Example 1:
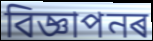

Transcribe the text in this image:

বিজ্ঞাপনৰ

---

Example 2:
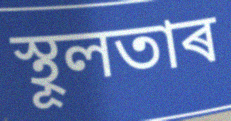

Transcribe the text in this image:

স্থূলতাৰ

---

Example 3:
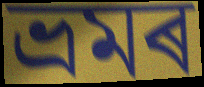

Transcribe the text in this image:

ভ্ৰমৰ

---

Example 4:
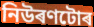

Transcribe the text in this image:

নিউৰণটোৰ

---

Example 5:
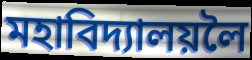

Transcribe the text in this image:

মহাবিদ্যালয়লৈ